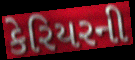
કેરિયરની